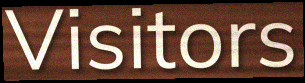
Visitors